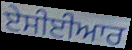
ਏਸੀਈਆਰ